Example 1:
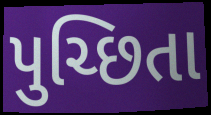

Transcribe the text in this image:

પુચ્છિતા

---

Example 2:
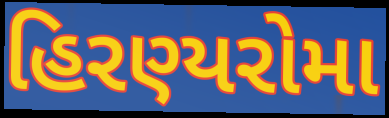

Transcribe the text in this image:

હિરણ્યરોમા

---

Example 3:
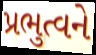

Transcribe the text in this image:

પ્રભુત્વને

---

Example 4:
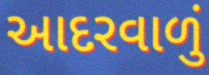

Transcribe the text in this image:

આદરવાળું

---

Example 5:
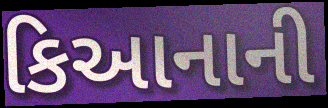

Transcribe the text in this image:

કિઆનાની